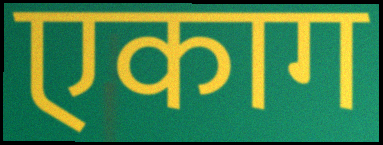
एकाग